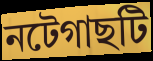
নটেগাছটি